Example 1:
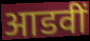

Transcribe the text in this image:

आडवीं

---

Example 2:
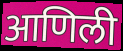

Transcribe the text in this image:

आणिली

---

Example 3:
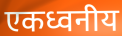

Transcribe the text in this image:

एकध्वनीय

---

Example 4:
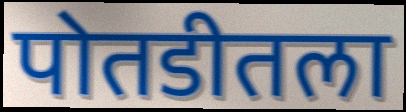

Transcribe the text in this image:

पोतडीतला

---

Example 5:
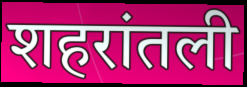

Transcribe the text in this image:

शहरांतली